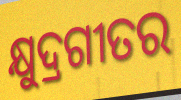
କ୍ଷୁଦ୍ରଗୀତର